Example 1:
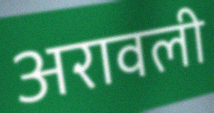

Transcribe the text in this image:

अरावली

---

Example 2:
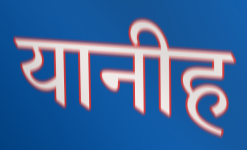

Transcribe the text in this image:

यानीह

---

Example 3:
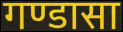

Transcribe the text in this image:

गण्डासा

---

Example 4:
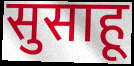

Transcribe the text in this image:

सुसाहू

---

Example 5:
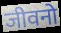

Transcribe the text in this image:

जीवनो